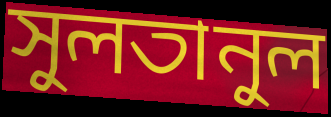
সুলতানুল